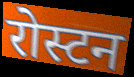
रोस्टन